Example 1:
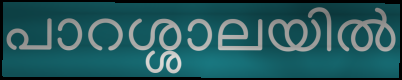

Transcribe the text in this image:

പാറശ്ശാലയിൽ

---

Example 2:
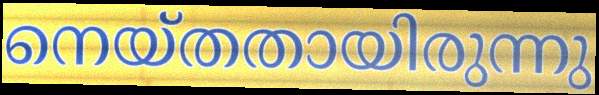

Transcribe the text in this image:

നെയ്തതായിരുന്നു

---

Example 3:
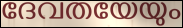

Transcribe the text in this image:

ദേവതയേയും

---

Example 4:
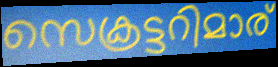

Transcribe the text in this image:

സെക്രട്ടറിമാര്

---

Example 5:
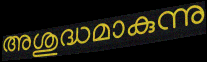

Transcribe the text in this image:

അശുദ്ധമാകുന്നു